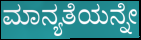
ಮಾನ್ಯತೆಯನ್ನೇ